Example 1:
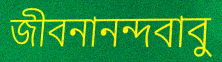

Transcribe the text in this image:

জীবনানন্দবাবু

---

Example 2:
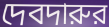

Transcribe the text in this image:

দেবদারুর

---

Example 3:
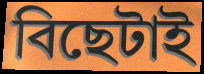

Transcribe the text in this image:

বিছেটাই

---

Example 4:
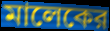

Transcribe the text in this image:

মালেকের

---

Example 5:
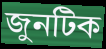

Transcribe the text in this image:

জুনটিক